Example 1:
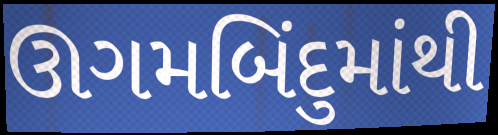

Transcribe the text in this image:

ઊગમબિંદુમાંથી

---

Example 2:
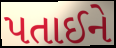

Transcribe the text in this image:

પતાઈને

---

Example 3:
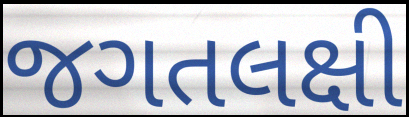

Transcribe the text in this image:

જગતલક્ષી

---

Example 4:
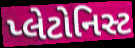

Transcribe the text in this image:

પ્લેટોનિસ્ટ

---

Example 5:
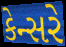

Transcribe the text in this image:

કેન્સરે